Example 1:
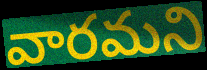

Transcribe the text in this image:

వారమని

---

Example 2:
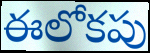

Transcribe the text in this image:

ఈలోకపు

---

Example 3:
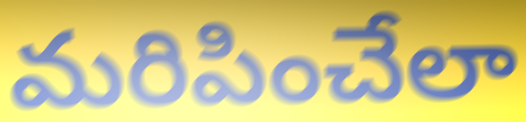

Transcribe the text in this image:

మరిపించేలా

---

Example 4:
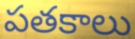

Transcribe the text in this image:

పతకాలు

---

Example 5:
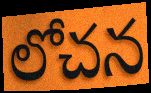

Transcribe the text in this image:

లోచన